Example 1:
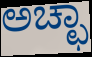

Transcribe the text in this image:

ಅಚ್ಛಾ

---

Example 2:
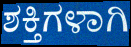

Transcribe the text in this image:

ಶಕ್ತಿಗಳಾಗಿ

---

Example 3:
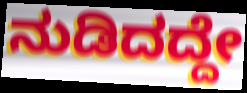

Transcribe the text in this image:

ನುಡಿದದ್ದೇ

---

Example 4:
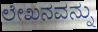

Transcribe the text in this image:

ಲೇಖನವನ್ನು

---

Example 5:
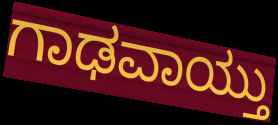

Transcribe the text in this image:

ಗಾಢವಾಯ್ತು